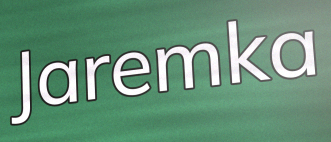
Jaremka